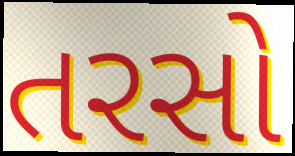
તરસો